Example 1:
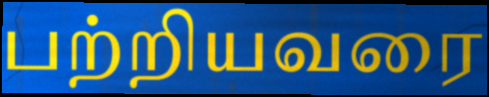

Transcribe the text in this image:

பற்றியவரை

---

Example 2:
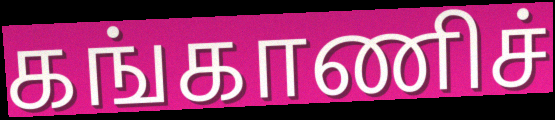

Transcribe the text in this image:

கங்காணிச்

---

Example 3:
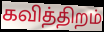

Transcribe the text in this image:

கவித்திறம்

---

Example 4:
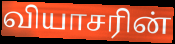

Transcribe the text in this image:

வியாசரின்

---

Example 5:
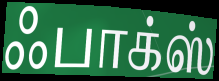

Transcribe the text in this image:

ஃபாக்ஸ்